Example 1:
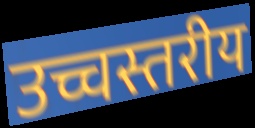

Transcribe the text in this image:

उच्चस्तरीय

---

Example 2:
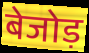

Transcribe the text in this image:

बेजोड़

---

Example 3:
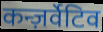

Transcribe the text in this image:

कन्ज़र्वेटिव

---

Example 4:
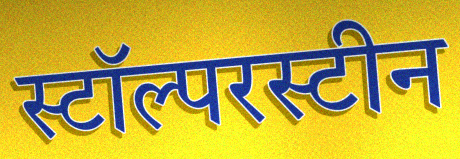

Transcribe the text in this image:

स्टॉल्परस्टीन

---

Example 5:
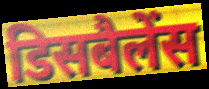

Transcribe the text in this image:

डिसबैलेंस